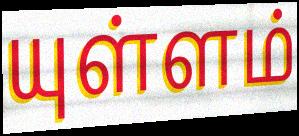
யுள்ளம்